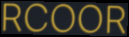
RCOOR